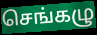
செங்கழு